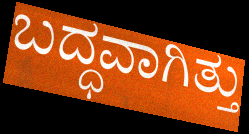
ಬದ್ಧವಾಗಿತ್ತು